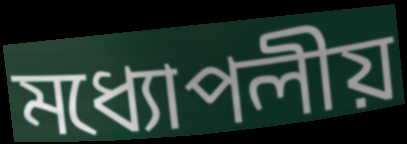
মধ্যোপলীয়